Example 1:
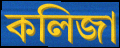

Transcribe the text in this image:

কলিজা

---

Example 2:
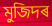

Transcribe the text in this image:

মুজিদৰ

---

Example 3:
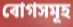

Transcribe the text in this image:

ৰোগসমূহ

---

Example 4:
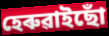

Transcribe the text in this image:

হেৰুৱাইছোঁ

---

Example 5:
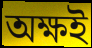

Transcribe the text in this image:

অক্ষই